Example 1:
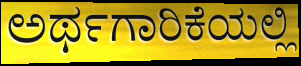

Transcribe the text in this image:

ಅರ್ಥಗಾರಿಕೆಯಲ್ಲಿ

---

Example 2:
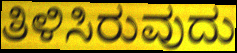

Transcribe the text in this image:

ತಿಳಿಸಿರುವುದು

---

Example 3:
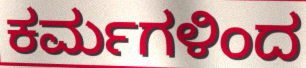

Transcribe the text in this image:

ಕರ್ಮಗಳಿಂದ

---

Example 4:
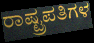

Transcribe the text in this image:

ರಾಷ್ಟ್ರಪತಿಗಳ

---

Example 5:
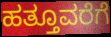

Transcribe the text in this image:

ಹತ್ತೂವರೆಗೆ